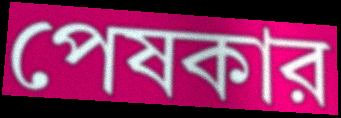
পেষকার